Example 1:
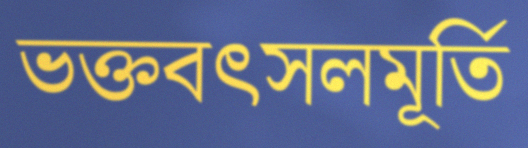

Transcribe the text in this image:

ভক্তবৎসলমূর্তি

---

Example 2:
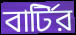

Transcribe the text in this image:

বার্টির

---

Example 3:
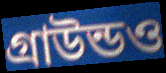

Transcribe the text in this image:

গ্রাউন্ডও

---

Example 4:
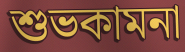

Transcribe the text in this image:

শুভকামনা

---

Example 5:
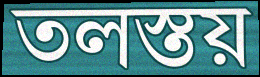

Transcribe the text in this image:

তলস্তয়